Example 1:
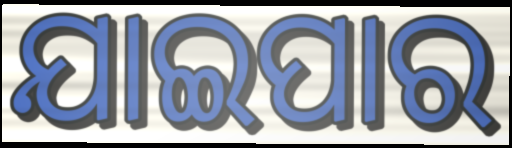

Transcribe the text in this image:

ଯାଇପାର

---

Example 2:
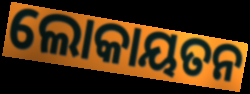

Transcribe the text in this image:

ଲୋକାୟତନ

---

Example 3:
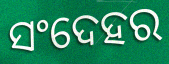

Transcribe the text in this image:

ସଂଦେହର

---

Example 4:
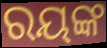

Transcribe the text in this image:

ରୟଙ୍କ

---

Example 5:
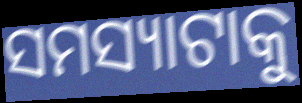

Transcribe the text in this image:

ସମସ୍ୟାଟାକୁ